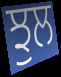
ਝੁਲ